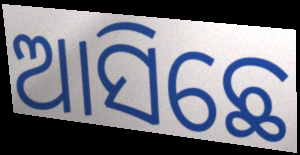
ଆସିଛେ